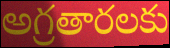
అగ్రతారలకు